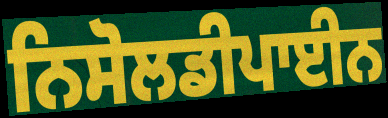
ਨਿਸੋਲਡੀਪਾਈਨ